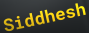
Siddhesh